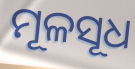
ମୂଳସୂଧ